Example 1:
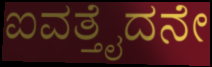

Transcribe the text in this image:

ಐವತ್ತೈದನೇ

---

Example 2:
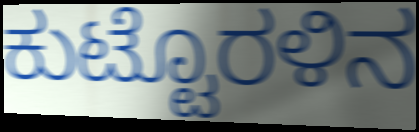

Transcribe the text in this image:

ಕುಟ್ಟೊರಳಿನ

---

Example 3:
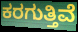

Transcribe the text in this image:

ಕರಗುತ್ತಿವೆ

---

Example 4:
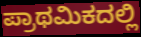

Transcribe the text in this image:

ಪ್ರಾಥಮಿಕದಲ್ಲಿ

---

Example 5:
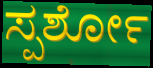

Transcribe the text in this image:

ಸ್ಪರ್ಶೋ